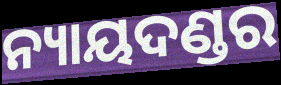
ନ୍ୟାୟଦଣ୍ଡର